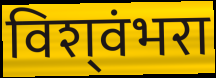
विश्वंभरा